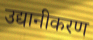
उद्यानीकरण